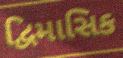
દ્વિમાસિક